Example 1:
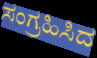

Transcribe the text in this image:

ಸಂಗ್ರಹಿಸಿದ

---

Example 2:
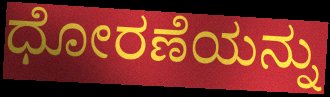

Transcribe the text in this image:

ಧೋರಣೆಯನ್ನು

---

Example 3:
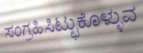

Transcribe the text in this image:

ಸಂಗ್ರಹಿಸಿಟ್ಟುಕೊಳ್ಳುವ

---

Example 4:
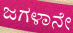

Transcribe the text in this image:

ಜಗಳಾನೇ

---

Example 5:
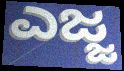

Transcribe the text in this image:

ಎಜ್ಜ